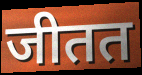
जीतत